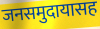
जनसमुदायासह